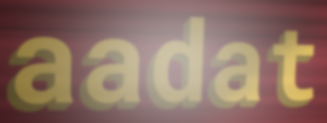
aadat